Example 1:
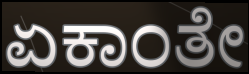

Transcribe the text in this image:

ಏಕಾಂತೇ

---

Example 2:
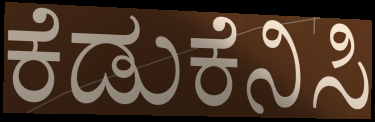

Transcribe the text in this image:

ಕೆಡುಕೆನಿಸಿ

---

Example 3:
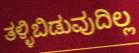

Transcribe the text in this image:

ತಳ್ಳಿಬಿಡುವುದಿಲ್ಲ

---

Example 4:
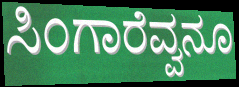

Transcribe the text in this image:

ಸಿಂಗಾರೆವ್ವನೂ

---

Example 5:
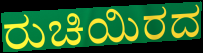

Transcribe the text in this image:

ರುಚಿಯಿರದ